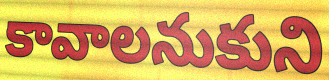
కావాలనుకుని